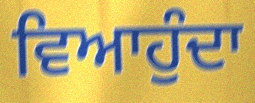
ਵਿਆਹੁੰਦਾ